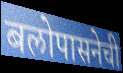
बलोपासनेची